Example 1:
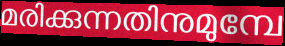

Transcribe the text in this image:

മരിക്കുന്നതിനുമുമ്പേ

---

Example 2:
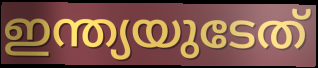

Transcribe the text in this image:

ഇന്ത്യയുടേത്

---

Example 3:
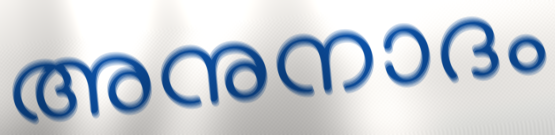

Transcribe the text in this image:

അനുനാദം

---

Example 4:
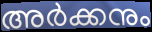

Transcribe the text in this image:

അർക്കനും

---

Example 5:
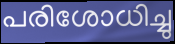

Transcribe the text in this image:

പരിശോധിച്ചു